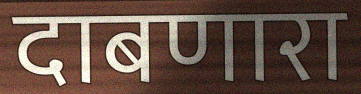
दाबणारा